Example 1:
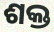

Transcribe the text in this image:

ଶକ୍ତ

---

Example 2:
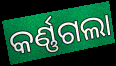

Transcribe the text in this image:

କର୍ଣ୍ଣଗଲା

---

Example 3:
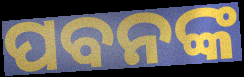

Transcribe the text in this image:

ପବନଙ୍କ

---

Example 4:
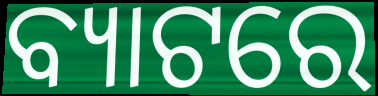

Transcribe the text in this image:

ବ୍ୟାଟରେ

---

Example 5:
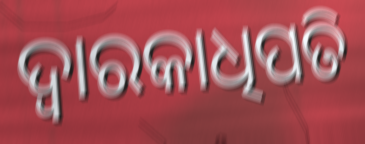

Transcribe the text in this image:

ଦ୍ୱାରକାଧିପତି